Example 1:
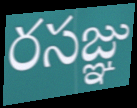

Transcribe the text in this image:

రసజ్ఞు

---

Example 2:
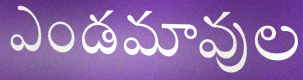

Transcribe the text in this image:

ఎండమావుల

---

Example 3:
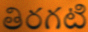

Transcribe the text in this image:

తిరగటి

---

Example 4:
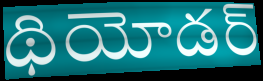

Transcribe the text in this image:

థియోడర్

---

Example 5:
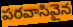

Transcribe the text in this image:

పరవాసివైన